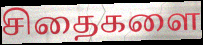
சிதைகளை